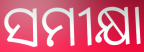
ସମୀକ୍ଷା